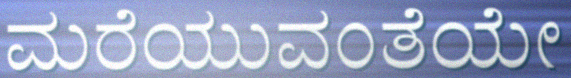
ಮರೆಯುವಂತೆಯೇ